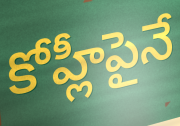
కోహ్లీపైనే